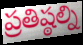
ప్రతిష్ఠల్ని